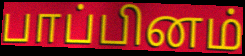
பாப்பினம்